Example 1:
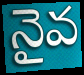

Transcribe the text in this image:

నైవ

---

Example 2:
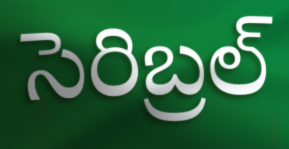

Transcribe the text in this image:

సెరిబ్రల్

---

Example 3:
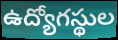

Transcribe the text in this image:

ఉద్యోగస్థుల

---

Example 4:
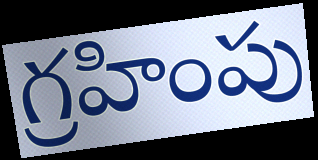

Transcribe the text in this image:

గ్రహింపు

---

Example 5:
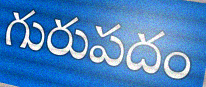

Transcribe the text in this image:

గురుపదం